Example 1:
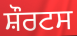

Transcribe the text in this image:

ਸ਼ੌਰਟਸ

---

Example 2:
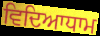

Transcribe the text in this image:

ਵਿਦਿਆਧਾਮ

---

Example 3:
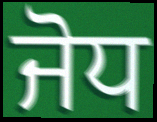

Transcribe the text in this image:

ਜੋਧ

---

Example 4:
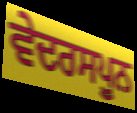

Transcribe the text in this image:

ਵੇਦਰਸਪੂਨ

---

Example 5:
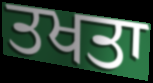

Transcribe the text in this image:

ਤਖਤਾ